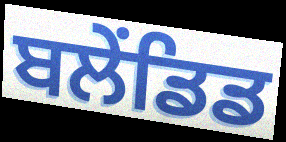
ਬਲੇਂਡਿਡ